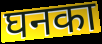
घनका